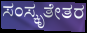
ಸಂಸ್ಕೃತೇತರ